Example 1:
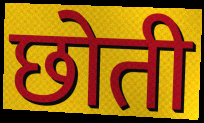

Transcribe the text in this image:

छोती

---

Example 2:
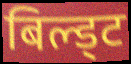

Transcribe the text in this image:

बिल्ड्ट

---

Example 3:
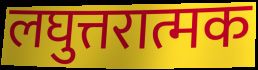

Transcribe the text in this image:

लघुत्तरात्मक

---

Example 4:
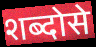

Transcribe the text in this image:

शब्दोसे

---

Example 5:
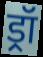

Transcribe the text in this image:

ड्रॉ